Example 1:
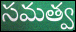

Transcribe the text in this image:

సమత్వ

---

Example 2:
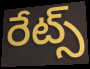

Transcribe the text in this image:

రేట్స్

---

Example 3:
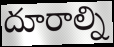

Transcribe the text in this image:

దూరాల్ని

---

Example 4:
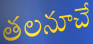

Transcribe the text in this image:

తలనూచే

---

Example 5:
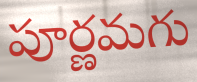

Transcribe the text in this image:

పూర్ణమగు